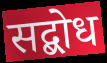
सद्बोध